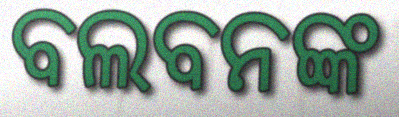
ବଲବନଙ୍କ